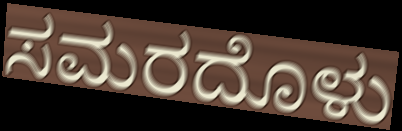
ಸಮರದೊಳು